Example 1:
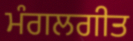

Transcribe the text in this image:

ਮੰਗਲਗੀਤ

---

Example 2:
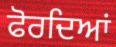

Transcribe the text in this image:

ਫੋਰਦਿਆਂ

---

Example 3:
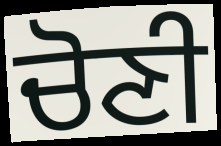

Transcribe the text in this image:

ਚੋਣੀ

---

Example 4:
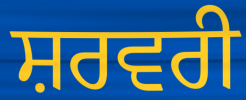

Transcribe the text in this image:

ਸ਼ਰਵਰੀ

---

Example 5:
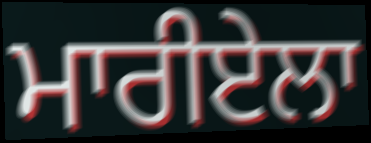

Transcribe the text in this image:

ਮਾਰੀਏਲਾ